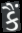
કૈં